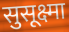
सुसूक्ष्मा